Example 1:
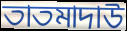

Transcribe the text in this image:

তাতমাদাউ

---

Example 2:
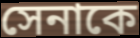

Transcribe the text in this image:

সেনাকে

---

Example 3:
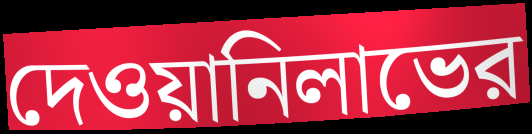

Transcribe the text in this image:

দেওয়ানিলাভের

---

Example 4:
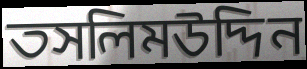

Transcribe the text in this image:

তসলিমউদ্দিন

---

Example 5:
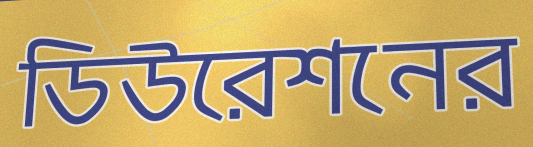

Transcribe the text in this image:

ডিউরেশনের